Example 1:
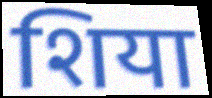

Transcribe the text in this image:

शिया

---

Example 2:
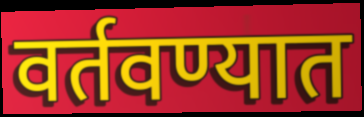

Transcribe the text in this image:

वर्तवण्यात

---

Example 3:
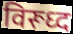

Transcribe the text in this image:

विरूध्द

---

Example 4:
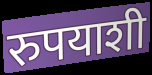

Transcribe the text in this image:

रुपयाशी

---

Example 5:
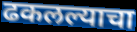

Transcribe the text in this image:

ढकलल्याचा